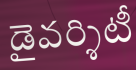
డైవర్శిటీ